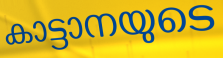
കാട്ടാനയുടെ